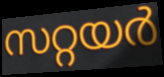
സറ്റയർ